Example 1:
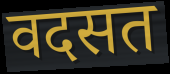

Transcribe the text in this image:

वदसत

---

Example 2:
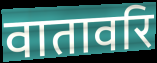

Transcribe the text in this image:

वातावरि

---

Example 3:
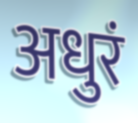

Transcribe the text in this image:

अधुरं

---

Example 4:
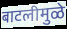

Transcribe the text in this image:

बाटलीमुळे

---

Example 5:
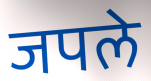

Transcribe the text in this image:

जपले